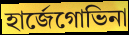
হাৰ্জেগোভিনা